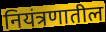
नियंत्रणातील